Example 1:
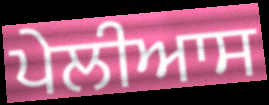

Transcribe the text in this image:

ਪੇਲੀਆਸ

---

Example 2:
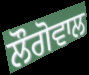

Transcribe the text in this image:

ਲੌਗੋਵਾਲ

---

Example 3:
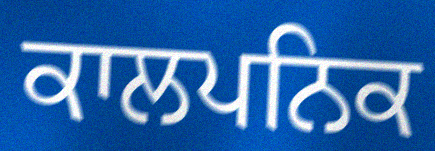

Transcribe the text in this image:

ਕਾਲਪਨਿਕ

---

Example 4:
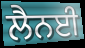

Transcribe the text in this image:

ਲੈਨਈ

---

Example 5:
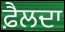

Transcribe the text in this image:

ਫ਼ੈਲਦਾ